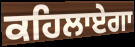
ਕਹਿਲਾਏਗਾ